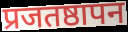
प्रजतष्ठापन